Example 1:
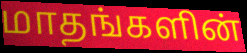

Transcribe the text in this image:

மாதங்களின்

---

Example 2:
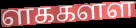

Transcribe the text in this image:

ளககளள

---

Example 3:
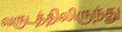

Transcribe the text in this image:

வருடத்திலிருந்து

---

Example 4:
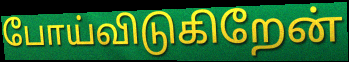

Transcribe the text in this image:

போய்விடுகிறேன்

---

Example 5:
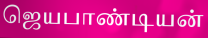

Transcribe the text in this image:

ஜெயபாண்டியன்